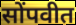
सोंपवीत